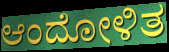
ಆಂದೋಳಿತ